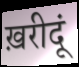
ख़रीदूं